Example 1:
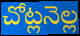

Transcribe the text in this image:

చోట్లనెల్ల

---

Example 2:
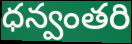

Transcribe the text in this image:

ధన్వంతరి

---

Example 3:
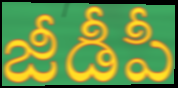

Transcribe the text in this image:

జీడీపీ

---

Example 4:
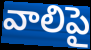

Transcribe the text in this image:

వాలిపై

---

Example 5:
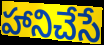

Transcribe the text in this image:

హానిచేసే